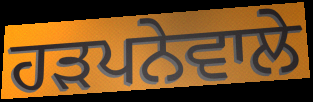
ਹੜਪਨੇਵਾਲੇ